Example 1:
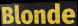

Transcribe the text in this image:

Blonde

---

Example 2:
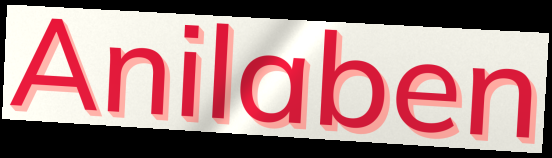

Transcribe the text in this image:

Anilaben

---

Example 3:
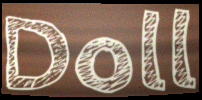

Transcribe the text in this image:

Doll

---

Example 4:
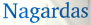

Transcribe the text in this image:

Nagardas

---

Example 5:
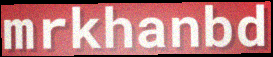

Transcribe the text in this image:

mrkhanbd